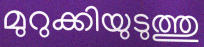
മുറുക്കിയുടുത്തു